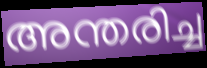
അന്തരിച്ച